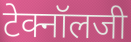
टेक्नॉलजी